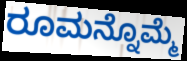
ರೂಮನ್ನೊಮ್ಮೆ